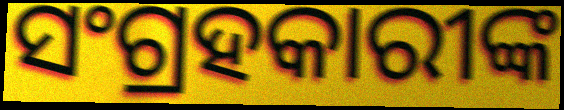
ସଂଗ୍ରହକାରୀଙ୍କ